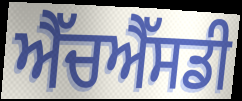
ਐੱਚਐੱਸਡੀ